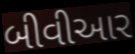
બીવીઆર